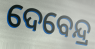
ଦେବେନ୍ଦ୍ର